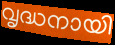
വൃദ്ധനായി